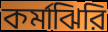
কর্মাঝিরি